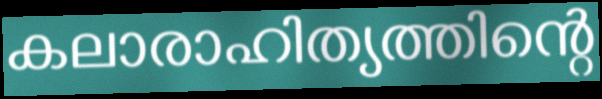
കലാരാഹിത്യത്തിന്റെ